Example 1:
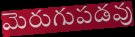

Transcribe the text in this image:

మెరుగుపడవు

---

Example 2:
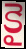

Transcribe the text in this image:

కై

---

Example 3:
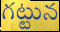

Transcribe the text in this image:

గట్టున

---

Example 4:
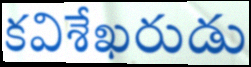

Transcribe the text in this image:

కవిశేఖరుడు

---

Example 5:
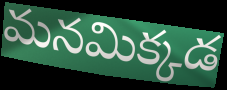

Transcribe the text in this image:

మనమిక్కడ